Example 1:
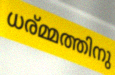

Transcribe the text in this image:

ധര്മ്മത്തിനു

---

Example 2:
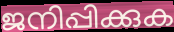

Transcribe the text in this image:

ജനിപ്പിക്കുക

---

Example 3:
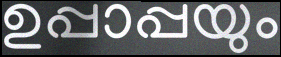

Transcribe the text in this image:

ഉപ്പാപ്പയും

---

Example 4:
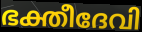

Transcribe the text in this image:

ഭക്തീദേവി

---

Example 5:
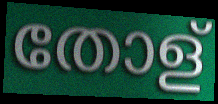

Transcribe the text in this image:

തോള്